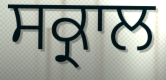
ਸਕ੍ਰਾਲ